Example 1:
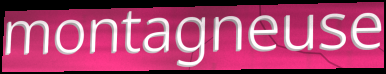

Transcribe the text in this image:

montagneuse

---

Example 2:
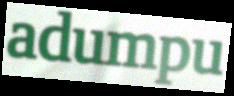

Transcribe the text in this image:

adumpu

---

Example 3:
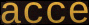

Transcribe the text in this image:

acce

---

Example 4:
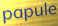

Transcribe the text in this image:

papule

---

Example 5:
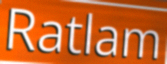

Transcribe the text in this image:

Ratlam